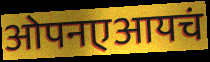
ओपनएआयचं